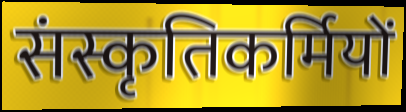
संस्कृतिकर्मियों